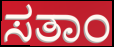
ಸತಾಂ